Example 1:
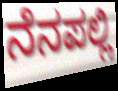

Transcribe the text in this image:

ನೆನಪಲ್ಲಿ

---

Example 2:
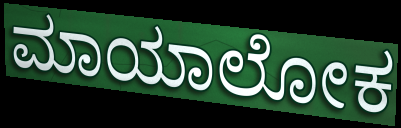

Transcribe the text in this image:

ಮಾಯಾಲೋಕ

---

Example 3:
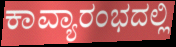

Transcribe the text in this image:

ಕಾವ್ಯಾರಂಭದಲ್ಲಿ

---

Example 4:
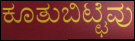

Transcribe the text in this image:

ಕೂತುಬಿಟ್ಟೆವು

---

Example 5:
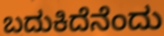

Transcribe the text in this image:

ಬದುಕಿದೆನೆಂದು